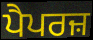
ਪੈਪਰਜ਼